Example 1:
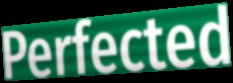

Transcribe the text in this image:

Perfected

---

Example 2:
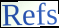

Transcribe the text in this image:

Refs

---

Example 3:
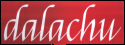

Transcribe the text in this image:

dalachu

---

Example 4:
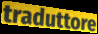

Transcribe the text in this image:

traduttore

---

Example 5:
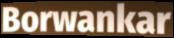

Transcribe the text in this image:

Borwankar